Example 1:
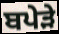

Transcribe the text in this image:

ਬਪੇੜੇ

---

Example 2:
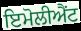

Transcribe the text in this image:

ਇਮੋਲੀਐਂਟ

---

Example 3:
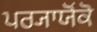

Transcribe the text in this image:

ਪਰ੍ਯਾਯੋਂਕੋ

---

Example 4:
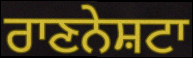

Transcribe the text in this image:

ਰਾਣਨੇਸ਼ਟਾ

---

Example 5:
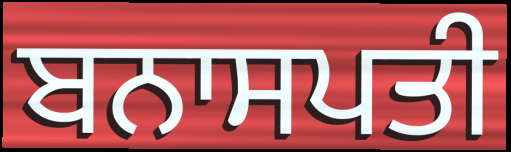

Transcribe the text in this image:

ਬਨਾਸਪਤੀ